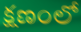
క్షణంలో